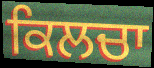
ਕਿਲਚਾ